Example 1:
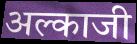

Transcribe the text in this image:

अल्काजी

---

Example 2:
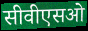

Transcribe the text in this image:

सीवीएसओ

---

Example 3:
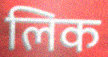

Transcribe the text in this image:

लिक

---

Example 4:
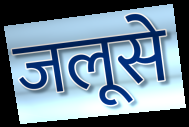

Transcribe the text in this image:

जलूसे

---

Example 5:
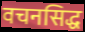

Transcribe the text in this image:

वचनसिद्ध